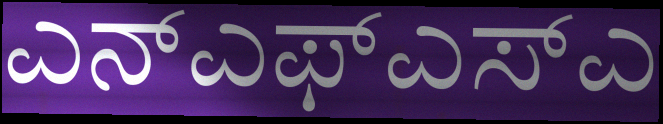
ಎನ್ಎಫ್ಎಸ್ಎ